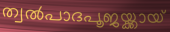
ത്വൽപാദപൂജയ്ക്കായ്